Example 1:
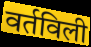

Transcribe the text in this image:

वर्तविली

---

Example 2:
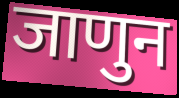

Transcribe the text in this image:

जाणुन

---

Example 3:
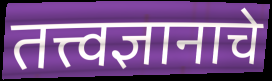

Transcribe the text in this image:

तत्त्वज्ञानाचे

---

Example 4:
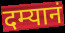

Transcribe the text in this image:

दम्यानं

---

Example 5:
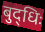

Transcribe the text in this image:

बुद्धिः